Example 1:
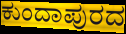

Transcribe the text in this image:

ಕುಂದಾಪುರದ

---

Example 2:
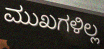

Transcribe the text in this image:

ಮುಖಗಳಿಲ್ಲ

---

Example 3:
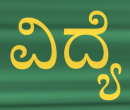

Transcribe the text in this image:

ವಿದ್ಯೆ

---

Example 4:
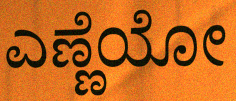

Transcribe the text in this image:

ಎಣ್ಣೆಯೋ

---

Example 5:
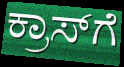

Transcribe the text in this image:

ಕ್ರಾಸ್‌ಗೆ